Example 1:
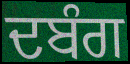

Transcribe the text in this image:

ਦਬੰਗ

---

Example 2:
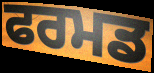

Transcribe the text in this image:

ਫਰਮਡ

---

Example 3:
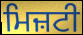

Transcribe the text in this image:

ਮਿਜ਼ਟੀ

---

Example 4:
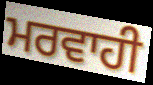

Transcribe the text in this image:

ਮਰਵਾਹੀ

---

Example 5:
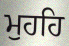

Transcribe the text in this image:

ਮੁਹਹਿ